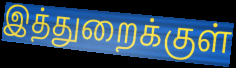
இத்துறைக்குள்